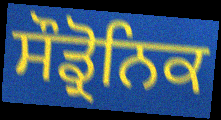
ਸੌਡ੍ਰੋਨਿਕ